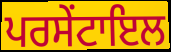
ਪਰਸੇਂਟਾਇਲ